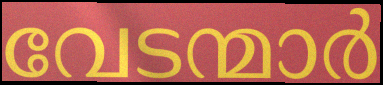
വേടന്മാർ